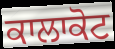
ਕਾਲਾਕੋਟ